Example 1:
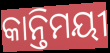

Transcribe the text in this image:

କାନ୍ତିମୟୀ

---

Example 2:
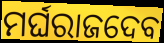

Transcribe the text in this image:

ମର୍ଘରାଜଦେବ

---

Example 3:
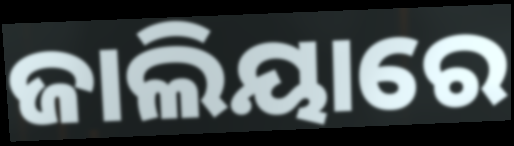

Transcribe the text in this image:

ଜାଲିୟାରେ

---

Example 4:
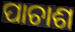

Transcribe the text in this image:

ପାଚାଶ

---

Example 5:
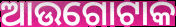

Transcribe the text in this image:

ଆଉଗୋଟାକ